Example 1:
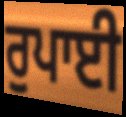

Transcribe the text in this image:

ਰੁਪਾਈ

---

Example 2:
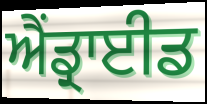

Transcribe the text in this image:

ਐਂਡ੍ਰਾਈਡ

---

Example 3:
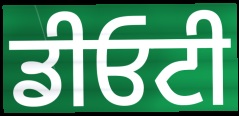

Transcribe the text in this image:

ਡੀਓਟੀ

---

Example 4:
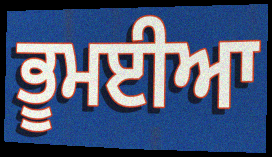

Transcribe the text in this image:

ਭੂਮਈਆ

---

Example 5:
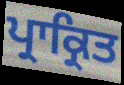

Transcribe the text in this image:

ਪ੍ਰਾਕ੍ਰਿਤ